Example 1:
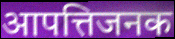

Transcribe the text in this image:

आपत्तिजनक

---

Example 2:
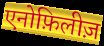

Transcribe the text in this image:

एनोफ़िलीज़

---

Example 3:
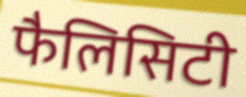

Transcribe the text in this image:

फैलिसिटी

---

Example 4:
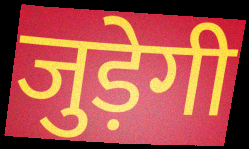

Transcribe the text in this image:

जुड़ेगी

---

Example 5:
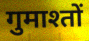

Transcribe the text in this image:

गुमाश्तों